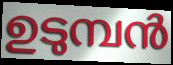
ഉടുമ്പൻ